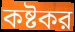
কষ্টকর